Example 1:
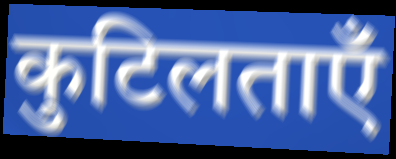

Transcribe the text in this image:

कुटिलताएँ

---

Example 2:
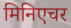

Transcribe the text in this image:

मिनिएचर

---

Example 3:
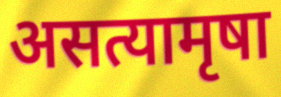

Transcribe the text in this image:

असत्यामृषा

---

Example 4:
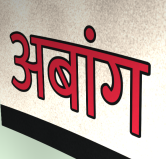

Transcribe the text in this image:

अबांग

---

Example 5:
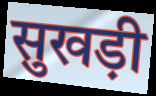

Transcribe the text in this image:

सुखड़ी